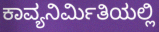
ಕಾವ್ಯನಿರ್ಮಿತಿಯಲ್ಲಿ